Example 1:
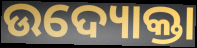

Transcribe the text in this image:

ଉଦ୍ୟୋକ୍ତା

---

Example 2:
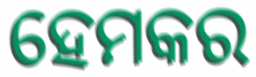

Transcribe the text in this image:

ହେମକର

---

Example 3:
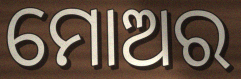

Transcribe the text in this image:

ମୋଅର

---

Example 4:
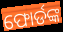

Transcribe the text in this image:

ଫୋର୍ଡଙ୍କ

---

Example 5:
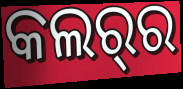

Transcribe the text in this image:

କଲର୍‌ର